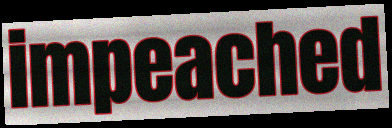
impeached